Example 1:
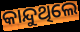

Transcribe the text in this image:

କାନ୍ଦୁଥିଲେ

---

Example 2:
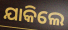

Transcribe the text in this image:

ଯାକିଲେ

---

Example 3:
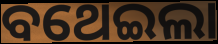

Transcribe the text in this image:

ବଥେଇଲା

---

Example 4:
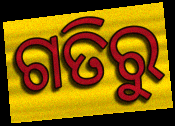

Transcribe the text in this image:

ଗତିରୁ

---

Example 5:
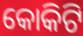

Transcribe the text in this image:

କୋକିଟି